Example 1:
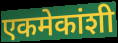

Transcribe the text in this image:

एकमेकांशी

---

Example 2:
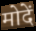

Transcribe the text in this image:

मोदें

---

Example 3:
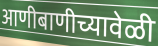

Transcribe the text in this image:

आणीबाणीच्यावेळी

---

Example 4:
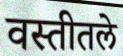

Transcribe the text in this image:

वस्तीतले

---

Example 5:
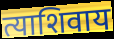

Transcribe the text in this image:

त्याशिवाय